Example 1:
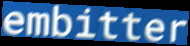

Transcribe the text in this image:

embitter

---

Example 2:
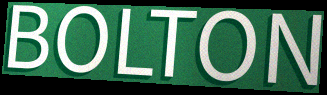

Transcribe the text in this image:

BOLTON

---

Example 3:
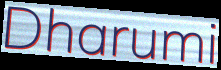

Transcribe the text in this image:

Dharumi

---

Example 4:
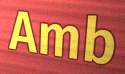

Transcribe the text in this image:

Amb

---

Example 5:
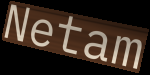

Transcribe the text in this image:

Netam